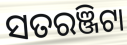
ସତରଞ୍ଜିଟା